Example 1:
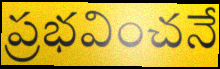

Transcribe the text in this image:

ప్రభవించనే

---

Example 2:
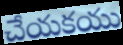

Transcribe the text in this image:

చేయకయు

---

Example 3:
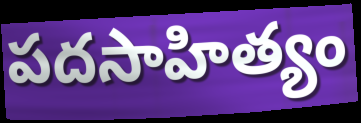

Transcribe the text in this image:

పదసాహిత్యం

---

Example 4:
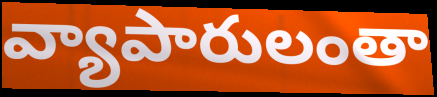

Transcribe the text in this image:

వ్యాపారులంతా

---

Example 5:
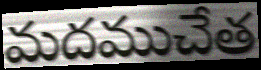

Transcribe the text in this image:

మదముచేత